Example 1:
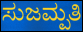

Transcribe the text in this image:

ಸುಜಮ್ಪತಿ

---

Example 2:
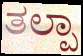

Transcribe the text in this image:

ತಲ್ಪಾ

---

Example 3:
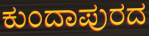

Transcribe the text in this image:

ಕುಂದಾಪುರದ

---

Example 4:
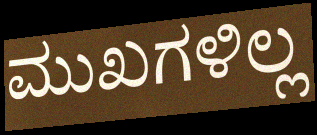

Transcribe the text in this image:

ಮುಖಗಳಿಲ್ಲ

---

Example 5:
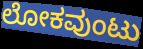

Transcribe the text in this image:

ಲೋಕವುಂಟು